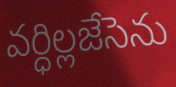
వర్ధిల్లజేసెను